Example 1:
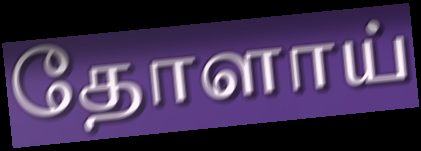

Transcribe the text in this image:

தோளாய்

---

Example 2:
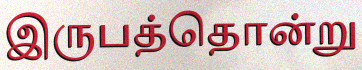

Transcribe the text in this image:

இருபத்தொன்று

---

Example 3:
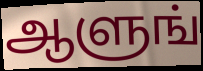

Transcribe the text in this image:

ஆளுங்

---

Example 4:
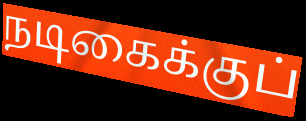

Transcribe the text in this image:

நடிகைக்குப்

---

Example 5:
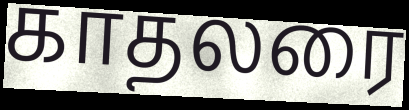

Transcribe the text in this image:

காதலரை